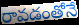
రావడంతోనే